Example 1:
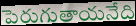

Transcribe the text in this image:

పెరుగుతాయనేది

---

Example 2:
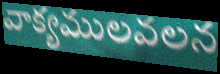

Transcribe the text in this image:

వాక్యములవలన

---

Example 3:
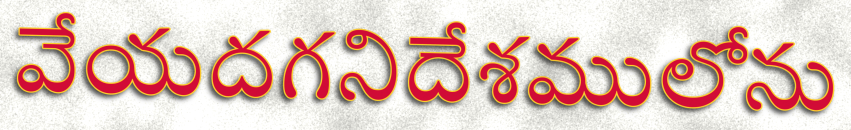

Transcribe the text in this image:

వేయదగనిదేశములోను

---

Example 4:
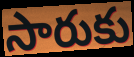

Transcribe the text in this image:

సారుకు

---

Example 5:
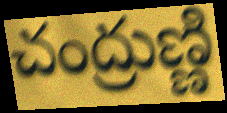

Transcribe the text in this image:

చంద్రుణ్ణి